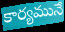
కార్యమునే